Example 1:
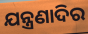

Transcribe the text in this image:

ଯନ୍ତ୍ରଣାଦିର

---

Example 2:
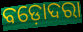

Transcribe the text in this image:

ବଡ଼ୋଦରା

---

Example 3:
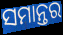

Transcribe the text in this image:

ସମାନ୍ତର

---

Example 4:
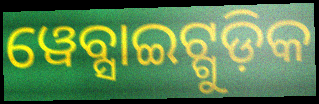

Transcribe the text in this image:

ୱେବ୍ସାଇଟ୍ଗୁଡ଼ିକ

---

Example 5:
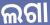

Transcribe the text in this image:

ଲଗା